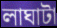
লাঘাটা